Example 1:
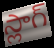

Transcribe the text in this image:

స్లాగ్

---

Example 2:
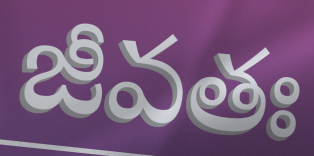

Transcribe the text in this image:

జీవతః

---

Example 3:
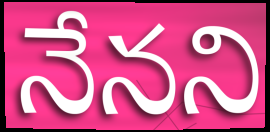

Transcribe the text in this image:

నేనని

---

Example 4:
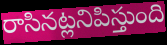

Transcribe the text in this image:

రాసినట్లనిపిస్తుంది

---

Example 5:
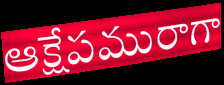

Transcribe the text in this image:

ఆక్షేపమురాగా